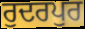
ਰੁਦਰਪੁਰ